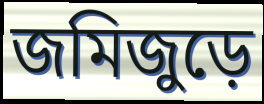
জমিজুড়ে